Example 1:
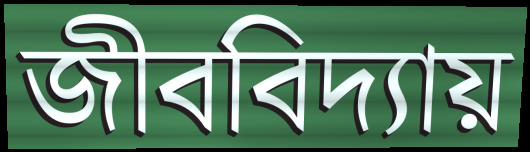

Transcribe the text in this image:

জীববিদ্যায়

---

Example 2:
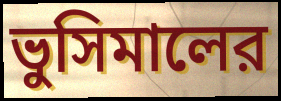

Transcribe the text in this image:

ভুসিমালের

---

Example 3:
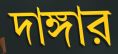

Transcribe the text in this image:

দাঙ্গার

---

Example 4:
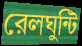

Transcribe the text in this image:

রেলঘুন্টি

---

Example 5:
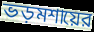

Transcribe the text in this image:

ভড়মশায়ের